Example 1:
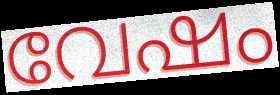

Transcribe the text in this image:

വേഷം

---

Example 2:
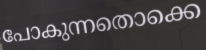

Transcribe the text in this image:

പോകുന്നതൊക്കെ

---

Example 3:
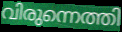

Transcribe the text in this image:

വിരുന്നെത്തി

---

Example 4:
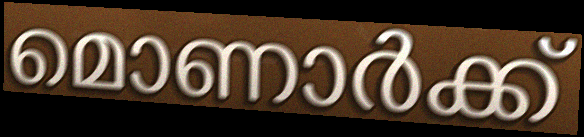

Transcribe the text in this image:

മൊണാർക്ക്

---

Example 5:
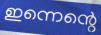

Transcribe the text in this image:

ഇന്നെന്റെ